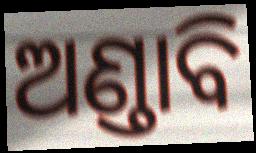
ଅଣ୍ଡାବି